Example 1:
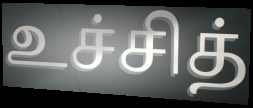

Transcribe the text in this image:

உச்சித்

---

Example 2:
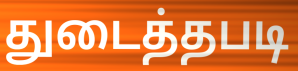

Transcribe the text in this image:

துடைத்தபடி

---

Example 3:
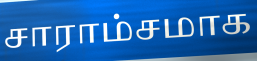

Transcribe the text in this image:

சாராம்சமாக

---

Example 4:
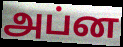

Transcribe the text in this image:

அப்ன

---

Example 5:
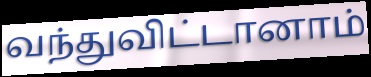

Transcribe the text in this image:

வந்துவிட்டானாம்